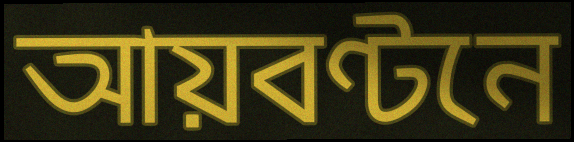
আয়বণ্টনে